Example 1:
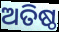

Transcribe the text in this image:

ଅତିଷ୍ଠ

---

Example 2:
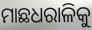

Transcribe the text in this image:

ମାଛଧରାଳିକୁ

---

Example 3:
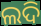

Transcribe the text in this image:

ଲଦି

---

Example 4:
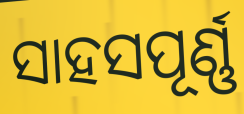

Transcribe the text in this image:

ସାହସପୂର୍ଣ୍ଣ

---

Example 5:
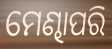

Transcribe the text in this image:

ମେଣ୍ଢାପରି